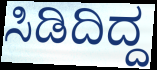
ಸಿಡಿದಿದ್ದ